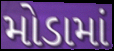
મોડામાં